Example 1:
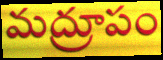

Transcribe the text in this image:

మద్రూపం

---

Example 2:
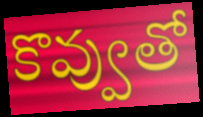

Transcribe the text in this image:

కొవ్వుతో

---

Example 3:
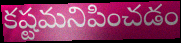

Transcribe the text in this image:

కష్టమనిపించడం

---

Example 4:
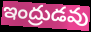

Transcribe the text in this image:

ఇంద్రుడవు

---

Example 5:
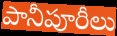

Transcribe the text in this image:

పానీపూరీలు